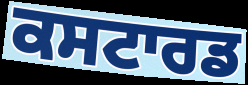
ਕਸਟਾਰਡ